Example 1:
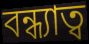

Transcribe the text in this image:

বন্ধ্যাত্ব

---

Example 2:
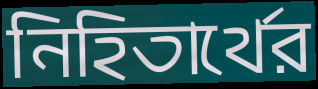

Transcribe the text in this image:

নিহিতার্থের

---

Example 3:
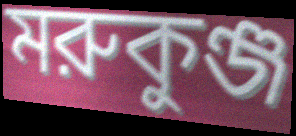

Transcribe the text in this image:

মরুকুঞ্জ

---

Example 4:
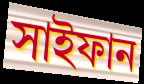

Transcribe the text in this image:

সাইফান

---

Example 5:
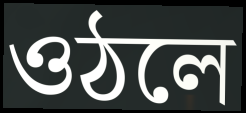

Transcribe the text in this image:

ওঠলে